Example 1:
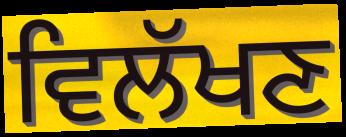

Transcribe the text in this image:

ਵਿਲੱਖਣ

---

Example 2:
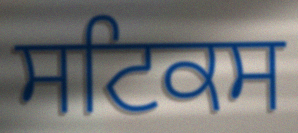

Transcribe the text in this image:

ਸਟਿਕਸ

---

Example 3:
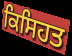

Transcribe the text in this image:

ਕਿਸਿਹਤ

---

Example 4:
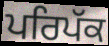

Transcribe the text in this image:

ਪਰਿਪੱਕ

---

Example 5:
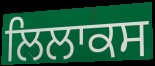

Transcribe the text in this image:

ਲਿਲਾਕਸ